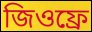
জিওফ্ৰে